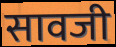
सावजी